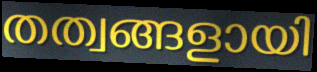
തത്വങ്ങളായി